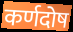
कर्णदोष